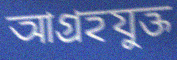
আগ্রহযুক্ত